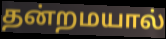
தன்றமயால்